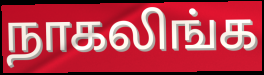
நாகலிங்க